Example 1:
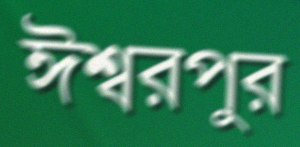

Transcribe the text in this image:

ঈশ্বরপুর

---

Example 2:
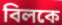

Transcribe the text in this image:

বিলকে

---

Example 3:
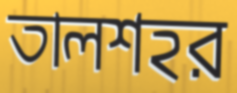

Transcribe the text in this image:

তালশহর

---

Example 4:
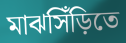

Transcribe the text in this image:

মাঝসিঁড়িতে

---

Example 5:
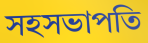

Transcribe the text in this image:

সহসভাপতি